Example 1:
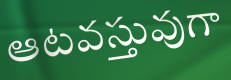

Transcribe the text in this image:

ఆటవస్తువుగా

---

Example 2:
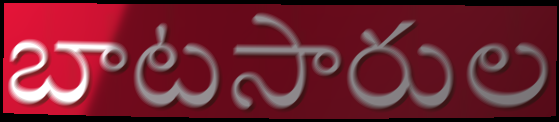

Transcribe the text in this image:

బాటసారుల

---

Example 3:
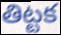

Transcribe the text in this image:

తిట్టక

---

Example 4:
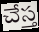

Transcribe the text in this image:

చేస్త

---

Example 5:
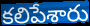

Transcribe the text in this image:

కలిపేశారు